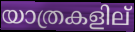
യാത്രകളില്